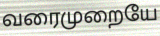
வரைமுறையே